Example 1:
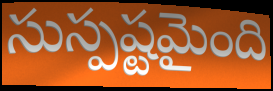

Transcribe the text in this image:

సుస్పష్టమైంది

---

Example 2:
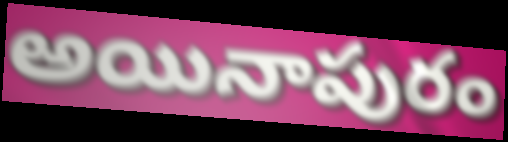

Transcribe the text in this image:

అయినాపురం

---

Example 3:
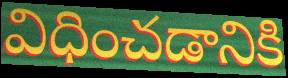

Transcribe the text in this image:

విధించడానికి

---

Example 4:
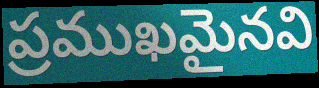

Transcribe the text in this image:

ప్రముఖమైనవి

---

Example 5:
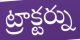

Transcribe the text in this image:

ట్రాక్టర్ను